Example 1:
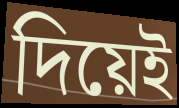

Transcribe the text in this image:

দিয়েই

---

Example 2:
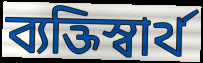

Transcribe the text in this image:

ব্যক্তিস্বার্থ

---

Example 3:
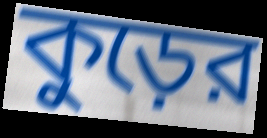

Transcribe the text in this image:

কুড়ের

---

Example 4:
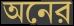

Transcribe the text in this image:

অনের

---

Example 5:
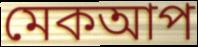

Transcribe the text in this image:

মেকআপ